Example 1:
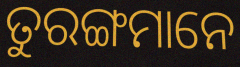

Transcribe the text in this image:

ତୁରଙ୍ଗମାନେ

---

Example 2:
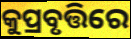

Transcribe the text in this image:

କୁପ୍ରବୃତ୍ତିରେ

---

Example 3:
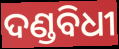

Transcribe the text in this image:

ଦଣ୍ଡବିଧୀ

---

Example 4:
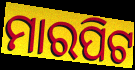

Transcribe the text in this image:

ମାରପିଟ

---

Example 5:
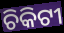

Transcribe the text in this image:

ଚିକିଟୀ